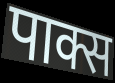
पाक्स